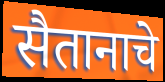
सैतानाचे